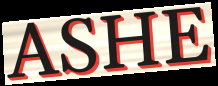
ASHE